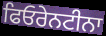
ਫਿਓਰੇਨਟੀਨਾ